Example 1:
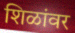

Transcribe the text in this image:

शिळांवर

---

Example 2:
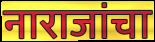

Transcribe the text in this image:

नाराजांचा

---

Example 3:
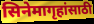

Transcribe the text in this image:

सिनेमागृहांसाठी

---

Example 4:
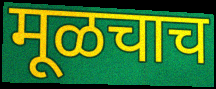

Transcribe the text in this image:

मूळचाच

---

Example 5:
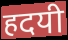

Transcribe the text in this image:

हदयी